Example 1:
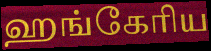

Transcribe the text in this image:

ஹங்கேரிய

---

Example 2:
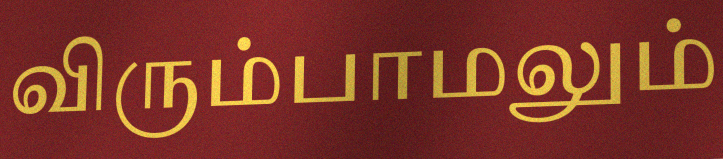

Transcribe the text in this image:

விரும்பாமலும்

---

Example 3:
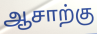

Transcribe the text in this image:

ஆசாற்கு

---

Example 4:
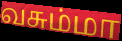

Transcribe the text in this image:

வசும்மா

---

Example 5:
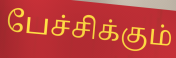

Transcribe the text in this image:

பேச்சிக்கும்